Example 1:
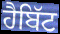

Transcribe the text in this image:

ਹੈਬਿੱਟ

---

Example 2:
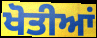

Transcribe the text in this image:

ਖੋਤੀਆਂ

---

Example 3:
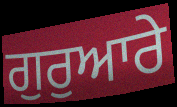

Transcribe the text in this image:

ਗੁਰੁਆਰੇ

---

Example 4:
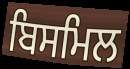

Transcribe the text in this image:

ਬਿਸਮਿਲ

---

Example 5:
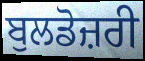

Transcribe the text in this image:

ਬੁਲਡੋਜ਼ਰੀ